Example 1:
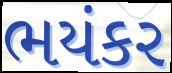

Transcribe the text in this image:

ભયંકર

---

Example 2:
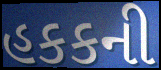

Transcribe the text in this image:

હકકની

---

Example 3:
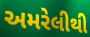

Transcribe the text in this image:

અમરેલીથી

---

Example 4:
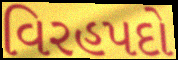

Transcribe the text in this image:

વિરહપદો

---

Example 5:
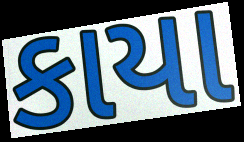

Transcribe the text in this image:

કાયા